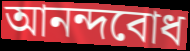
আনন্দবোধ